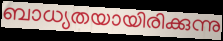
ബാധ്യതയായിരിക്കുന്നു